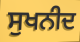
ਸੁਖਨੀਦ